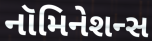
નૉમિનેશન્સ